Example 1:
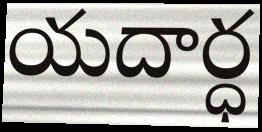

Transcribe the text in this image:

యదార్ధ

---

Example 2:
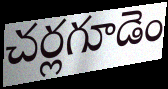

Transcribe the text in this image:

చర్లగూడెం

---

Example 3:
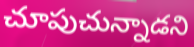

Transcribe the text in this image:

చూపుచున్నాడని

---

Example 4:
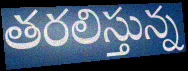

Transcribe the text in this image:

తరలిస్తున్న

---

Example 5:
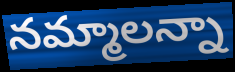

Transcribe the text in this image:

నమ్మాలన్నా